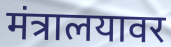
मंत्रालयावर